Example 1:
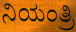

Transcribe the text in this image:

ನಿಯಂತ್ರಿ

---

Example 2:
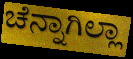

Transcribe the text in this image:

ಚೆನ್ನಾಗಿಲ್ಲಾ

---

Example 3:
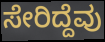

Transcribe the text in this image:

ಸೇರಿದ್ದೆವು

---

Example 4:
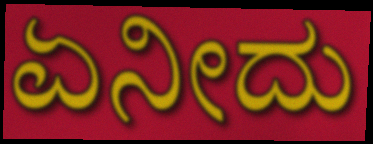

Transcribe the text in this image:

ಏನೀದು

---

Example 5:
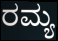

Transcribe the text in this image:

ರಮ್ಯ